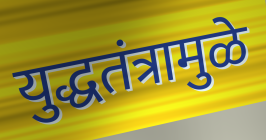
युद्धतंत्रामुळे